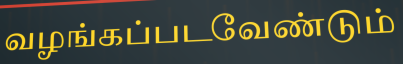
வழங்கப்படவேண்டும்